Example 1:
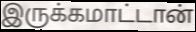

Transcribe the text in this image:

இருக்கமாட்டான்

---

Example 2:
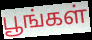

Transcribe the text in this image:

பூங்கள்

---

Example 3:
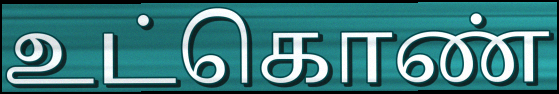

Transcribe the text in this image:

உட்கொண்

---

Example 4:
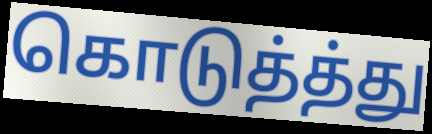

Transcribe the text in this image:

கொடுத்த்து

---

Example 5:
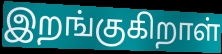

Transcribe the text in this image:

இறங்குகிறாள்